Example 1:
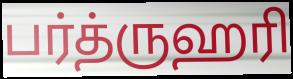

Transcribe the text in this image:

பர்த்ருஹரி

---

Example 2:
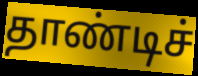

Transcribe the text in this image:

தாண்டிச்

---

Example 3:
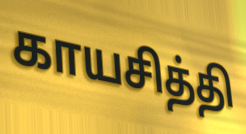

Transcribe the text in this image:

காயசித்தி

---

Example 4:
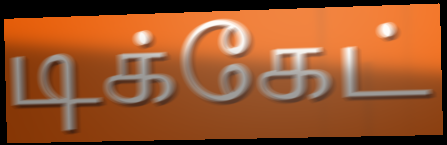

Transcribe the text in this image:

டிக்கேட்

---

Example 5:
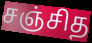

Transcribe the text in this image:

சஞ்சித